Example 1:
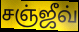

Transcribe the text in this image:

சஞ்ஜீவ்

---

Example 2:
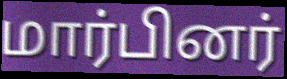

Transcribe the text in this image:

மார்பினர்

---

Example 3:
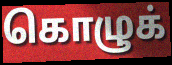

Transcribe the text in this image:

கொழுக்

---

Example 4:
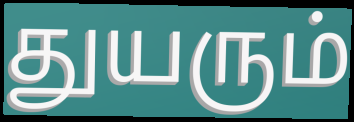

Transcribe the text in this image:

துயரும்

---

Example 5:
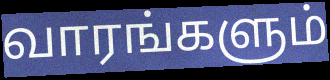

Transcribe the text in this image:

வாரங்களும்